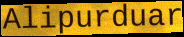
Alipurduar